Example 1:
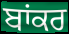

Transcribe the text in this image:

ਬਾਂਕਰ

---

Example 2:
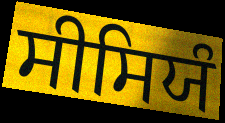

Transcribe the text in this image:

ਸੀਸਿਯੰ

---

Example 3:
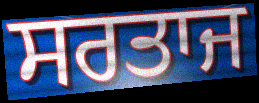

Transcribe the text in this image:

ਸਰਤਾਜ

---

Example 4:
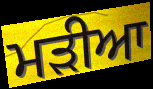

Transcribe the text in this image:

ਮੜੀਆ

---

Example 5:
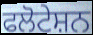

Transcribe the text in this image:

ਫਲੋਟੇਸ਼ਨ